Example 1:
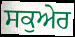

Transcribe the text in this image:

ਸਕੁਅੇਰ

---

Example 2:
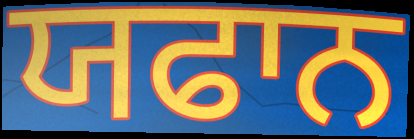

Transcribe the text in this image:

ਯਫਾਨ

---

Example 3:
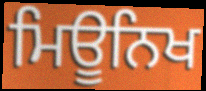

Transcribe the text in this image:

ਮਿਊਨਿਖ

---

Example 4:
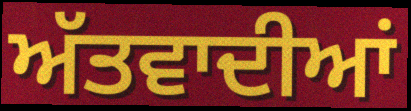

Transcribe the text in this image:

ਅੱਤਵਾਦੀਆਂ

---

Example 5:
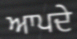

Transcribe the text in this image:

ਆਪਦੇ